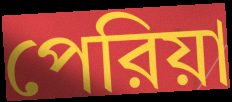
পেরিয়া